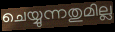
ചെയ്യുന്നതുമില്ല